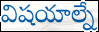
విషయాల్నే